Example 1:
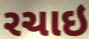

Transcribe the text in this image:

રચાઇ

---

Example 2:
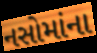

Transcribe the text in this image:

નસોમાંના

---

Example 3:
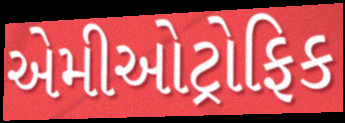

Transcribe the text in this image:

એમીઓટ્રોફિક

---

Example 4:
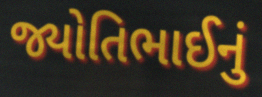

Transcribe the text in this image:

જ્યોતિભાઈનું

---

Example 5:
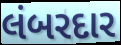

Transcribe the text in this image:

લંબરદાર